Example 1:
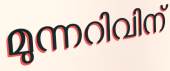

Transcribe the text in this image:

മുന്നറിവിന്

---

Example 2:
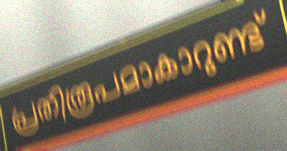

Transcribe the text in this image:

പ്രതിരൂപമാകാറുണ്ട്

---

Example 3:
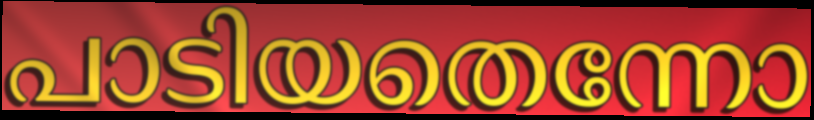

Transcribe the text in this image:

പാടിയതെന്നോ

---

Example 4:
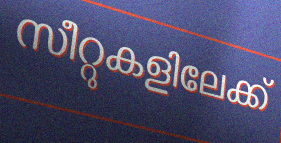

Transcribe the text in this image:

സീറ്റുകളിലേക്ക്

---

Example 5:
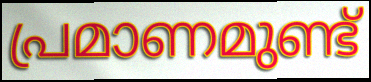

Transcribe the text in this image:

പ്രമാണമുണ്ട്